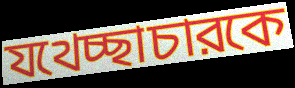
যথেচ্ছাচারকে